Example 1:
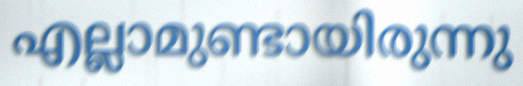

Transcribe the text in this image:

എല്ലാമുണ്ടായിരുന്നു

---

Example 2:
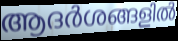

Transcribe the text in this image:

ആദർശങ്ങളിൽ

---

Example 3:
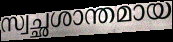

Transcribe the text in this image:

സ്വച്ഛശാന്തമായ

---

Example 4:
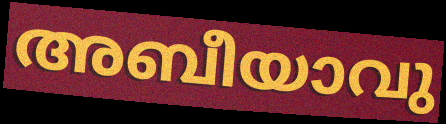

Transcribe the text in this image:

അബീയാവു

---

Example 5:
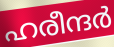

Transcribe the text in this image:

ഹരീന്ദർ